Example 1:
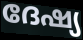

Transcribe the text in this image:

ദേഷ്യ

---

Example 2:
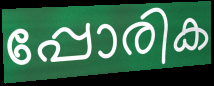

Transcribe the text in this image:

പ്പോരിക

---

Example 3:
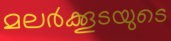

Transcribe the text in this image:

മലർക്കൂടയുടെ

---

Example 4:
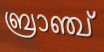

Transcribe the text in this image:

ബ്രാഞ്ച്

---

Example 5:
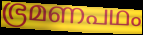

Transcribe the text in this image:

ഭ്രമണപഥം